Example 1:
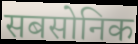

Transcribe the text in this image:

सबसोनिक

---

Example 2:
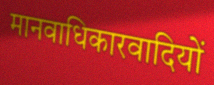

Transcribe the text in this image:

मानवाधिकारवादियों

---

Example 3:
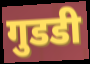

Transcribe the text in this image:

गुडडी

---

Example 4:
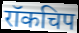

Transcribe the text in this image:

रॉकचिप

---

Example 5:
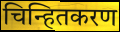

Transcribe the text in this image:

चिन्हितकरण